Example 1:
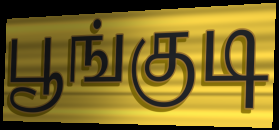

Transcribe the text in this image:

பூங்குடி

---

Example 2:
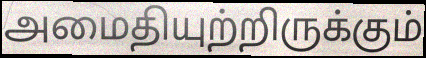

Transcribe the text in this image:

அமைதியுற்றிருக்கும்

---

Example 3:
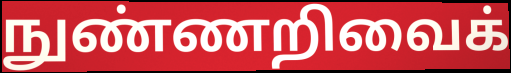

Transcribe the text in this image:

நுண்ணறிவைக்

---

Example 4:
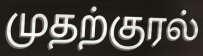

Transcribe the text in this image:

முதற்குரல்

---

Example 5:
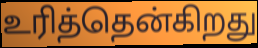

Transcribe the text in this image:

உரித்தென்கிறது